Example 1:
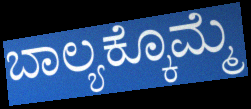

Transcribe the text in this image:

ಬಾಲ್ಯಕ್ಕೊಮ್ಮೆ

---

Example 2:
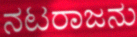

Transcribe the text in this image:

ನಟರಾಜನು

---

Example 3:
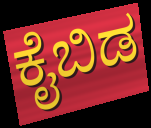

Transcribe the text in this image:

ಕೈಬಿಡ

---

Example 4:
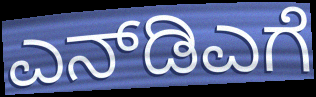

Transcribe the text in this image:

ಎನ್‌ಡಿಎಗೆ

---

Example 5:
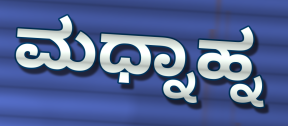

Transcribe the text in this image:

ಮಧ್ನಾಹ್ನ